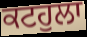
ਕਟਹੁਲਾ